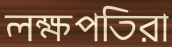
লক্ষপতিরা